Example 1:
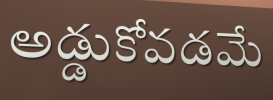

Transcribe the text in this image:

అడ్డుకోవడమే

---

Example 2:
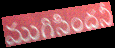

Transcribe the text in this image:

ముగిసిందనీ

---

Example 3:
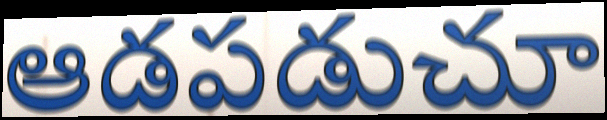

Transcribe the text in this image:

ఆడపడుచూ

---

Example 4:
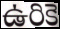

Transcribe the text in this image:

ఉరికె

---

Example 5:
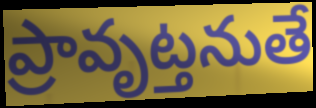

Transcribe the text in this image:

ప్రావృట్తనుతే